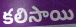
కలిసాయి